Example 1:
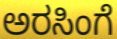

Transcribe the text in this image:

ಅರಸಿಂಗೆ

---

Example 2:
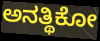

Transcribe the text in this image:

ಅನತ್ಥಿಕೋ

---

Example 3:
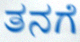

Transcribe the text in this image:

ತನಗೆ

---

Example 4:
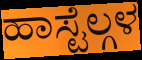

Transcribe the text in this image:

ಹಾಸ್ಟೆಲ್ಗಳ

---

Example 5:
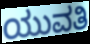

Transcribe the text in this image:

ಯುವತಿ